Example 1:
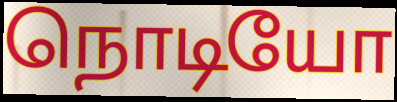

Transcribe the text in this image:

நொடியோ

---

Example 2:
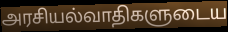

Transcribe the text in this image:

அரசியல்வாதிகளுடைய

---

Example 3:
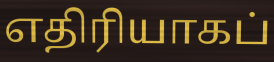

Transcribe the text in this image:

எதிரியாகப்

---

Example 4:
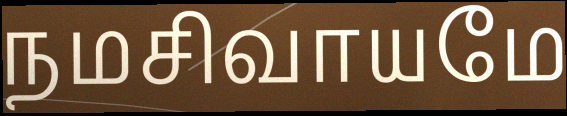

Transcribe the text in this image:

நமசிவாயமே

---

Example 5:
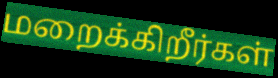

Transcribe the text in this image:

மறைக்கிறீர்கள்